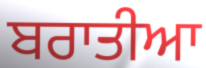
ਬਰਾਤੀਆ